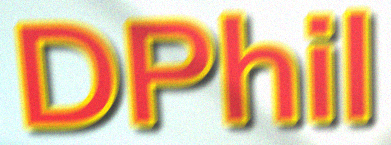
DPhil